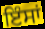
ਇੰਸਾਂ